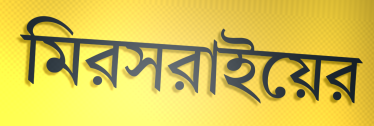
মিরসরাইয়ের